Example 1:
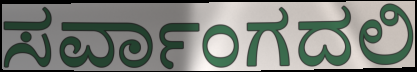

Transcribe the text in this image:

ಸರ್ವಾಂಗದಲಿ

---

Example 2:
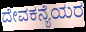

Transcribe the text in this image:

ದೇವಕನ್ಯೆಯರ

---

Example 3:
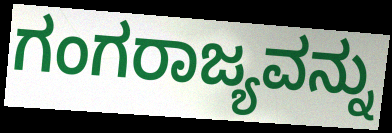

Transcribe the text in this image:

ಗಂಗರಾಜ್ಯವನ್ನು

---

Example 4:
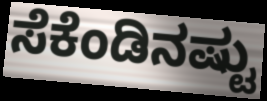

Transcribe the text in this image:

ಸೆಕೆಂಡಿನಷ್ಟು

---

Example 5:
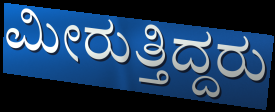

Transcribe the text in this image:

ಮೀರುತ್ತಿದ್ದರು